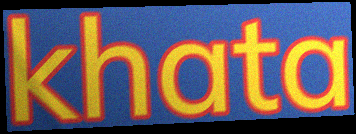
khata